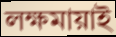
লক্ষমায়াই